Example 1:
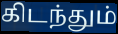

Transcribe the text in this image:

கிடந்தும்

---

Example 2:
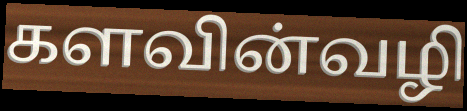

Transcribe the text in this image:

களவின்வழி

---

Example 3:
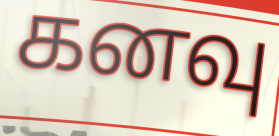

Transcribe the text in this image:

கனவு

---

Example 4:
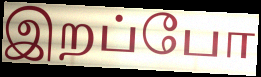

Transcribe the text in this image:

இறப்போ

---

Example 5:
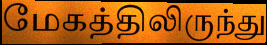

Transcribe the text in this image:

மேகத்திலிருந்து